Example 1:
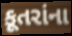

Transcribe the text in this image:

કૂતરાંના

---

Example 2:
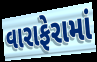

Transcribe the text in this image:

વારાફેરામાં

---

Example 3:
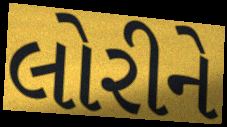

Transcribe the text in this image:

લોરીને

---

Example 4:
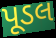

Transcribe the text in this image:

પૂડલ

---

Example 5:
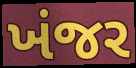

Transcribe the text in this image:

ખંજર